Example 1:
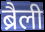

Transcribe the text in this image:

ब्रैली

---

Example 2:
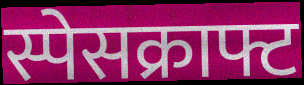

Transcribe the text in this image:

स्पेसक्राफ्ट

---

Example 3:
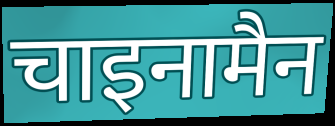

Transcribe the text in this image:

चाइनामैन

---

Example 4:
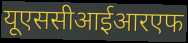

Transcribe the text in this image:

यूएससीआईआरएफ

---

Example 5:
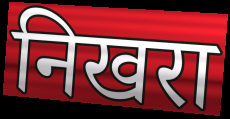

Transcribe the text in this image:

निखरा